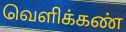
வெளிக்கண்